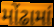
મોંઢામાં